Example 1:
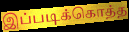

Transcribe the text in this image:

இப்படிக்கொத்த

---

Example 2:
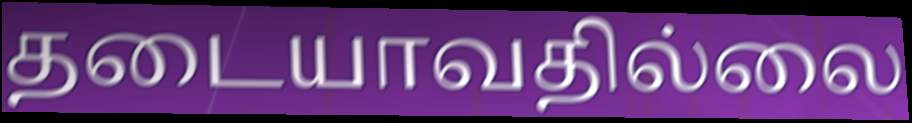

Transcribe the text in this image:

தடையாவதில்லை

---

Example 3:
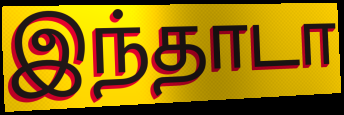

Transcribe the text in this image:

இந்தாடா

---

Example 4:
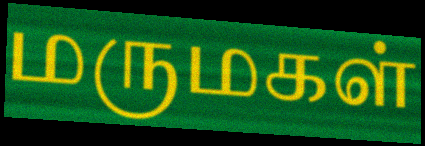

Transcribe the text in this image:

மருமகள்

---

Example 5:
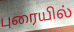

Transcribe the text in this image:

புரையில்